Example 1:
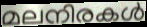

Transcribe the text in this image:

മലനിരകൾ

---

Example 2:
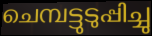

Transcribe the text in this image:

ചെമ്പട്ടുടുപ്പിച്ചു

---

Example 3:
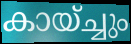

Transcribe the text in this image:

കായ്ച്ചും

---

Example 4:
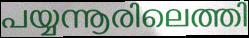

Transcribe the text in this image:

പയ്യന്നൂരിലെത്തി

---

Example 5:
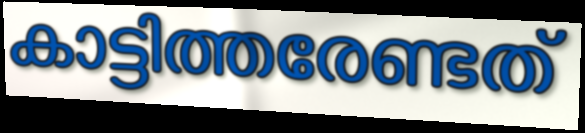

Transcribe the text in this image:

കാട്ടിത്തരേണ്ടത്